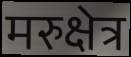
मरुक्षेत्र